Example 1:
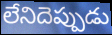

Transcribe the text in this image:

లేనిదెప్పుడు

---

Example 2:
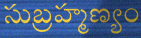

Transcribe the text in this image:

సుబ్రహ్మణ్యం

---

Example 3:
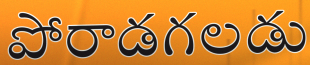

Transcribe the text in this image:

పోరాడగలడు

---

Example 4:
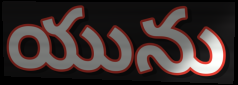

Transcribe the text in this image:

యును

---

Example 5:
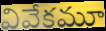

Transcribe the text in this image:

వివేకమూ